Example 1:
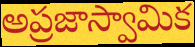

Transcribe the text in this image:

అప్రజాస్వామిక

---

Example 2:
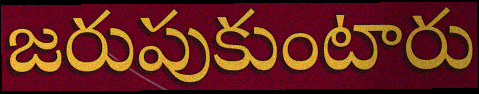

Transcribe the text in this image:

జరుపుకుంటారు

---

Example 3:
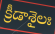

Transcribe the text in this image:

క్రీడాశైలః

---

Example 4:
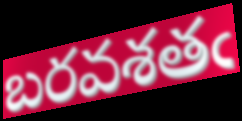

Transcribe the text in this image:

బరవశతఁ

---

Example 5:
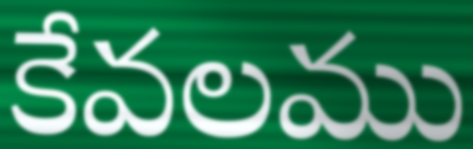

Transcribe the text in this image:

కేవలము